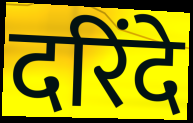
दरिंदे